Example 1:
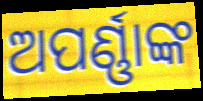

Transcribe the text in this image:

ଅପର୍ଣ୍ଣାଙ୍କ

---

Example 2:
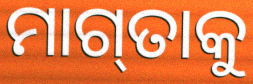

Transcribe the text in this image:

ମାଗ୍‌ତାକୁ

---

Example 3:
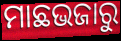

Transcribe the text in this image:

ମାଛଭଜାରୁ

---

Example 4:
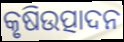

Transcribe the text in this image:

କୃଷିଉତ୍ପାଦନ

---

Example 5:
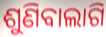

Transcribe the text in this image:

ଶୁଣିବାଲାଗି